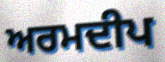
ਅਰਮਦੀਪ